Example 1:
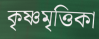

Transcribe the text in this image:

কৃষ্ণমৃত্তিকা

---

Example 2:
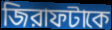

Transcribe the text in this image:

জিরাফটাকে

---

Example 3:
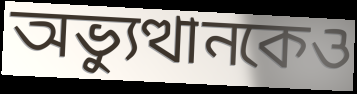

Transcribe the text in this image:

অভ্যুত্থানকেও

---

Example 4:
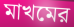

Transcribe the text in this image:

মাখমের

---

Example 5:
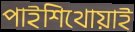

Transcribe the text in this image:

পাইশিথোয়াই